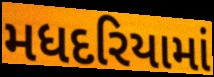
મધદરિયામાં